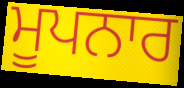
ਮੂਪਨਾਰ